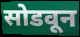
सोडवून